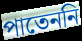
পাতেননি